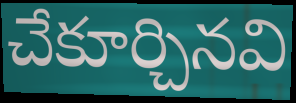
చేకూర్చినవి